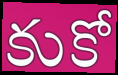
కుకో